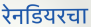
रेनडियरचा